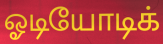
ஓடியோடிக்